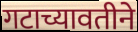
गटाच्यावतीने